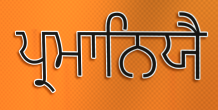
ਪ੍ਰਮਾਨਿਯੈ